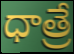
ధాత్రే